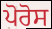
ਪੋਰੋਸ